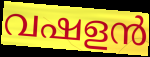
വഷളൻ